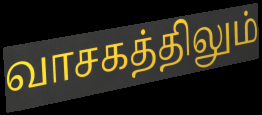
வாசகத்திலும்